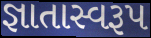
જ્ઞાતાસ્વરૂપ